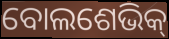
ବୋଲଶେଭିକ୍